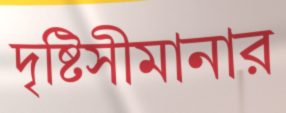
দৃষ্টিসীমানার